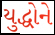
યુદ્ધોને